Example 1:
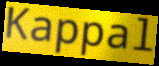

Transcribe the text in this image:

Kappal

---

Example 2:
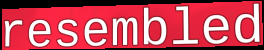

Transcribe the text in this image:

resembled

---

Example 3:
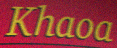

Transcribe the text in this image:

Khaoa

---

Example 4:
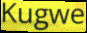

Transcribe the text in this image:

Kugwe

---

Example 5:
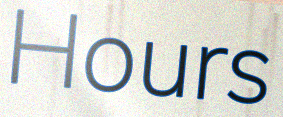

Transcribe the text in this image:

Hours